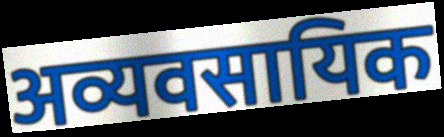
अव्यवसायिक